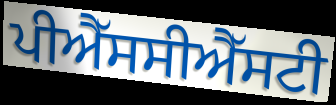
ਪੀਐੱਸਸੀਐੱਸਟੀ